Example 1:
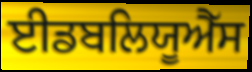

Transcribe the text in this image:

ਈਡਬਲਿਯੂਐੱਸ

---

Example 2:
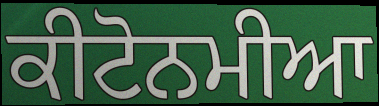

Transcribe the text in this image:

ਕੀਟੋਨਮੀਆ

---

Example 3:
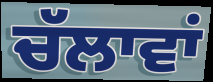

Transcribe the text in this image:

ਚੱਲਾਵਾਂ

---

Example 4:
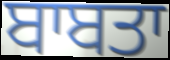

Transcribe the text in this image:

ਬਾਬਤਾ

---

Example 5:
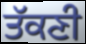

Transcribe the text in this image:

ਤੱਕਣੀ